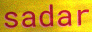
sadar